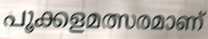
പൂക്കളമത്സരമാണ്